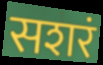
सशरं